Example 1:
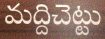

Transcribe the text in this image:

మద్దిచెట్టు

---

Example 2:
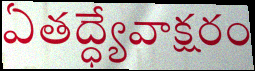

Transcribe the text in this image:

ఏతద్ధ్యేవాక్షరం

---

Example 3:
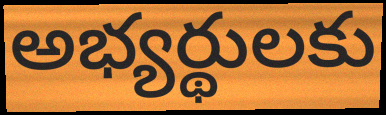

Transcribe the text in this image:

అభ్యర్థులకు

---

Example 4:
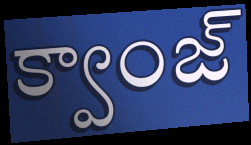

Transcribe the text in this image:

క్వాంజ్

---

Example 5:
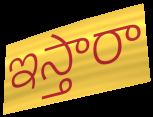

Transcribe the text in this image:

ఇస్తారా